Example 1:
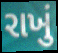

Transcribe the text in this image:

રાખું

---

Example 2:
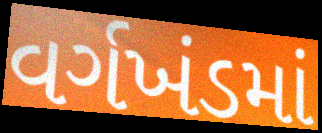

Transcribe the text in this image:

વર્ગખંડમાં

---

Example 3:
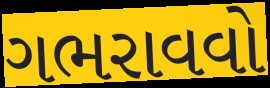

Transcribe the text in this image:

ગભરાવવો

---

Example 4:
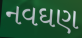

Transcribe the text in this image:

નવઘણ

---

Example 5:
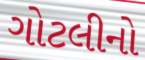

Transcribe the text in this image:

ગોટલીનો